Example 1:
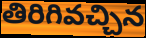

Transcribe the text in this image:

తిరిగివచ్చిన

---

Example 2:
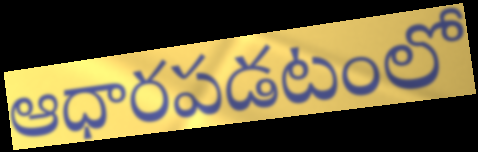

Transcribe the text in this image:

ఆధారపడటంలో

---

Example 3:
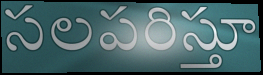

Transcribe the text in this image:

సలపరిస్తూ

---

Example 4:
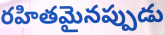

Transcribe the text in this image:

రహితమైనప్పుడు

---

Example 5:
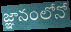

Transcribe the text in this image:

జ్ఞానంలోనో